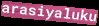
arasiyaluku